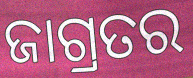
ଜାଗ୍ରତର